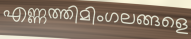
എണ്ണത്തിമിംഗലങ്ങളെ